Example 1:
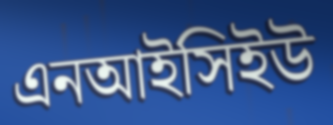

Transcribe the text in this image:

এনআইসিইউ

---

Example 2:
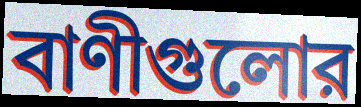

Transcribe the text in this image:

বাণীগুলোর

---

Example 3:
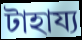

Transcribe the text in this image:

টাহায্য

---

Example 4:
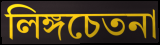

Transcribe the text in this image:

লিঙ্গচেতনা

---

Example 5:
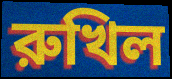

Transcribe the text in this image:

রুখিল